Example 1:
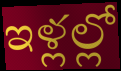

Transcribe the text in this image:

ఇళ్లల్లో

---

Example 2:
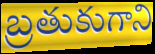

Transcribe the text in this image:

బ్రతుకుగాని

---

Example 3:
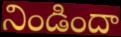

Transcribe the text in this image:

నిండిందా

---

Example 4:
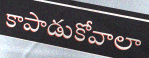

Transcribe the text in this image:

కాపాడుకోవాలా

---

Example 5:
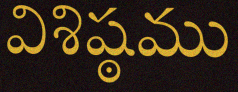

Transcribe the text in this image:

విశిష్ఠము